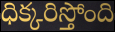
ధిక్కరిస్తోంది